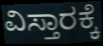
ವಿಸ್ತಾರಕ್ಕೆ